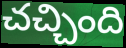
చచ్చింది